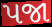
પજા